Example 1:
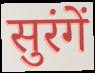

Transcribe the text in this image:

सुरंगें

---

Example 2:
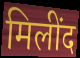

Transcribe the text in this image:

मिलींद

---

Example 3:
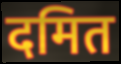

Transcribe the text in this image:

दमित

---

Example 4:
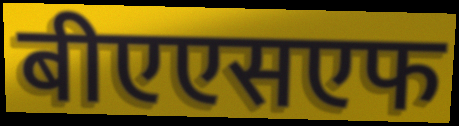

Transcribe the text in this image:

बीएएसएफ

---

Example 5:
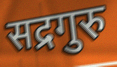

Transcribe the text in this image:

सद्रगुरु